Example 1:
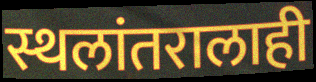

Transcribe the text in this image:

स्थलांतरालाही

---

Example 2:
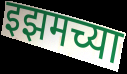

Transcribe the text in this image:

इझमच्या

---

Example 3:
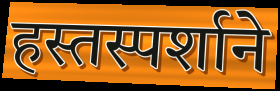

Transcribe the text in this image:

हस्तस्पर्शाने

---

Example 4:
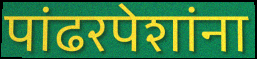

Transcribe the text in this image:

पांढरपेशांना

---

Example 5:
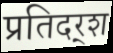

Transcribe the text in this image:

प्रतिदर्श